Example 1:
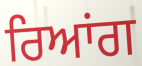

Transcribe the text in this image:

ਰਿਆਂਗ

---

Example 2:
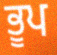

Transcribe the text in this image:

ਭੂਪ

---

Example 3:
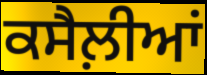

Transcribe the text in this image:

ਕਸੈਲ਼ੀਆਂ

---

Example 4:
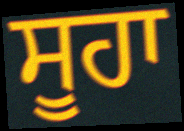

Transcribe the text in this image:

ਸੂਹਾ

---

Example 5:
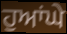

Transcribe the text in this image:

ਹੁਆਂਘੇ